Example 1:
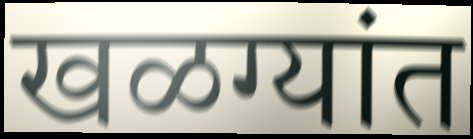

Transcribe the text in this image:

खळग्यांत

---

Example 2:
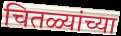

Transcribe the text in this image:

चितळ्यांच्या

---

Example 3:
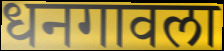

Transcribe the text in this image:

धनगावला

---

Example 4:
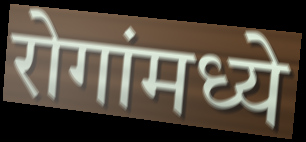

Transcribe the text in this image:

रोगांमध्ये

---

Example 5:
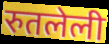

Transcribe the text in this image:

रुतलेली